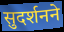
सुदर्शनने